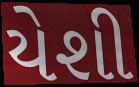
યેશી